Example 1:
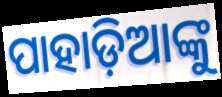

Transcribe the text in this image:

ପାହାଡ଼ିଆଙ୍କୁ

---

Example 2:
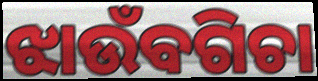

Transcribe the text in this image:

ଝାଉଁବଗିଚା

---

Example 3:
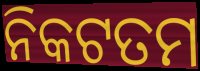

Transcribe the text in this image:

ନିକଟତମ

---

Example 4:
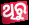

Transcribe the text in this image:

ଥିରୁ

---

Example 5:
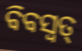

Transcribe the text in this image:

ବିବସ୍ଵତ୍